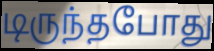
டிருந்தபோது